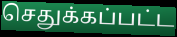
செதுக்கப்பட்ட